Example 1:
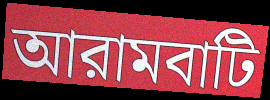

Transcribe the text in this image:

আরামবাটি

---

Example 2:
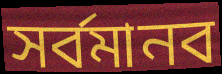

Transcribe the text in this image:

সর্বমানব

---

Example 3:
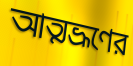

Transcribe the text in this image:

আত্মভ্রূণের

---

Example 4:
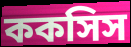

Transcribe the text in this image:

ককসিস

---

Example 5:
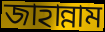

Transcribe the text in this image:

জাহান্নাম